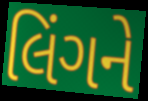
લિંગને